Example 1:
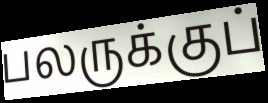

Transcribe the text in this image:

பலருக்குப்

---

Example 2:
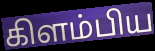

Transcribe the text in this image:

கிளம்பிய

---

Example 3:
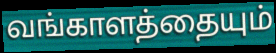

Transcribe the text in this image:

வங்காளத்தையும்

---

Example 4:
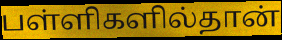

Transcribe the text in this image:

பள்ளிகளில்தான்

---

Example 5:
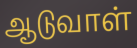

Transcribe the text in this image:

ஆடுவாள்